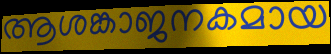
ആശങ്കാജനകമായ